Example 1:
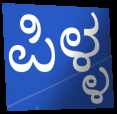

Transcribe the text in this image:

ಪಿಳ್ಳ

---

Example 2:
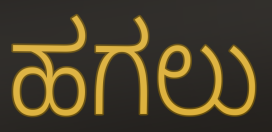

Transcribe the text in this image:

ಹಗಲು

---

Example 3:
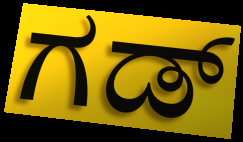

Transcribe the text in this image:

ಗಡ್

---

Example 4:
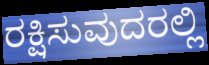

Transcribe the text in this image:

ರಕ್ಷಿಸುವುದರಲ್ಲಿ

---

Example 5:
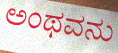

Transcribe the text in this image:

ಅಂಥವನು